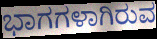
ಭಾಗಗಳಾಗಿರುವ